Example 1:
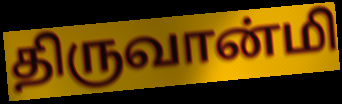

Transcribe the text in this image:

திருவான்மி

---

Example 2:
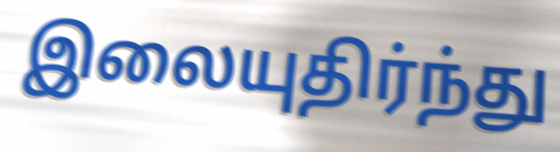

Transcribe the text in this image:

இலையுதிர்ந்து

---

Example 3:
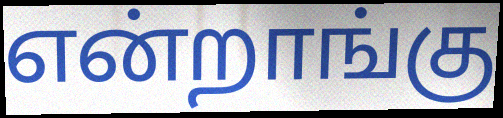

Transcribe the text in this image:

என்றாங்கு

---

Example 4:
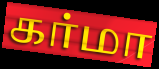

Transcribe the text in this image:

கர்மா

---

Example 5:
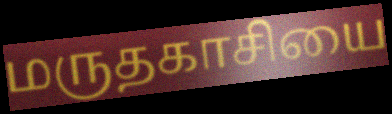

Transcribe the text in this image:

மருதகாசியை